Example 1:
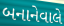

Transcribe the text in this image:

બનાનેવાલે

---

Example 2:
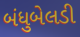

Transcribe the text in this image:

બંધુબેલડી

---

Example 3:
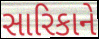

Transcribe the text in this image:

સારિકાને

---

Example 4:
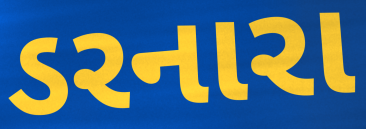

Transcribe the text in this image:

ડરનારા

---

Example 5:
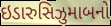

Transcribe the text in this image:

ઇડારુસિઝુમાબનો